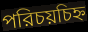
পরিচয়চিহ্ন